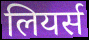
लियर्स